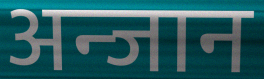
अन्जान